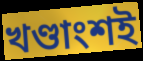
খণ্ডাংশই